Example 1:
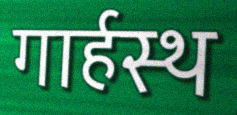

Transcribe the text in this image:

गार्हस्थ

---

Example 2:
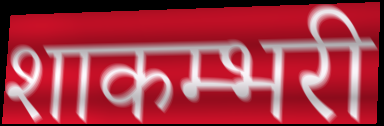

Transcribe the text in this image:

शाकम्भरी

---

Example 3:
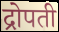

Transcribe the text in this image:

द्रोपती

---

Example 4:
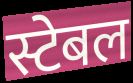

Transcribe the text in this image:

स्टेबल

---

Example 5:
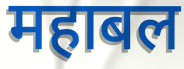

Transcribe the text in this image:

महाबल